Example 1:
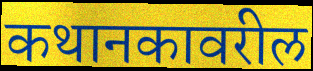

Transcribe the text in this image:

कथानकावरील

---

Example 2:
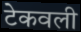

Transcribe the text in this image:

टेकवली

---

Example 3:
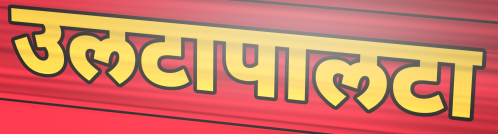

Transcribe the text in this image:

उलटापालटा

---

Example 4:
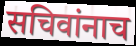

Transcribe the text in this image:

सचिवांनाच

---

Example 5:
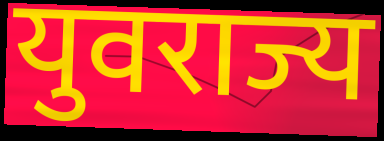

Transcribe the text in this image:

युवराज्य